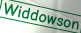
Widdowson